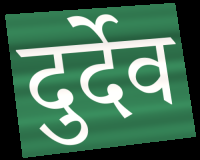
दुर्देव